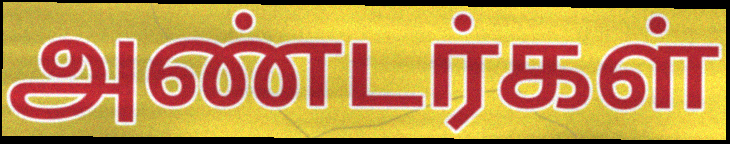
அண்டர்கள்